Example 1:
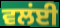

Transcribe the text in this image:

ਵਲਂਈ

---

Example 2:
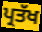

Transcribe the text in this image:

ਪ੍ਰਤੱਖ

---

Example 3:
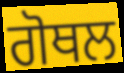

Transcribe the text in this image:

ਗੋਥਲ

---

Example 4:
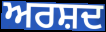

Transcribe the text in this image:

ਅਰਸ਼ਦ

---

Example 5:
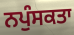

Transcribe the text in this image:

ਨਪੁੰਸਕਤਾ